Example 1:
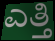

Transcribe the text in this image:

ಎತ್ತಿ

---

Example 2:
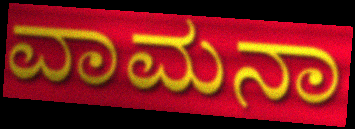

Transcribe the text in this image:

ವಾಮನಾ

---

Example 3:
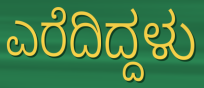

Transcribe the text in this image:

ಎರೆದಿದ್ದಳು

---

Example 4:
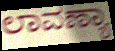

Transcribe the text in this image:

ಲಾವಣ್ಯಾ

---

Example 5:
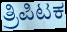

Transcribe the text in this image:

ತ್ರಿಪಿಟಕ